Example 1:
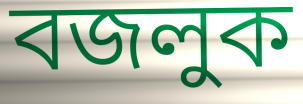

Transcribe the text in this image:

বজলুক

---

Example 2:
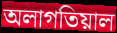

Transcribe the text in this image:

অলাগতিয়াল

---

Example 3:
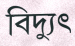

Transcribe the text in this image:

বিদ্যুৎ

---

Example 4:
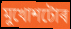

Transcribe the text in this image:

মুখোশটোৰ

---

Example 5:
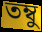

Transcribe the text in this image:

তম্বু